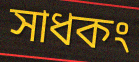
সাধকং